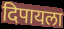
दिपायला